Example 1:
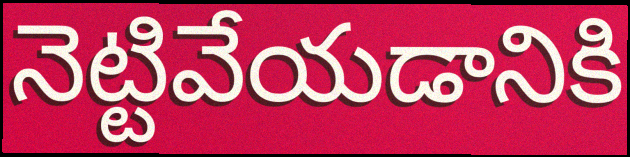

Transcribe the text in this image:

నెట్టివేయడానికి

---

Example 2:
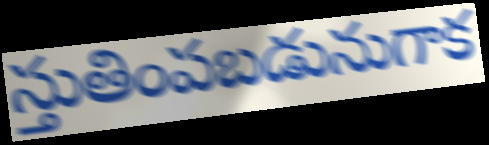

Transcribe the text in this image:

స్తుతింపబడునుగాక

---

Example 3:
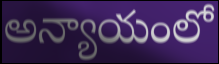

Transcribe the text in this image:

అన్యాయంలో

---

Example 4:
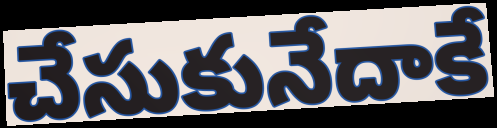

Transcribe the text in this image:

చేసుకునేదాకే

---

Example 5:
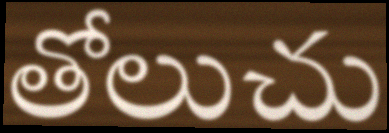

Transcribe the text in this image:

తోలుచు